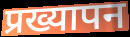
प्रख्यापन